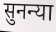
सुनन्या